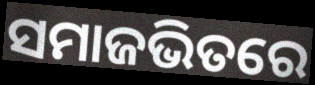
ସମାଜଭିତରେ